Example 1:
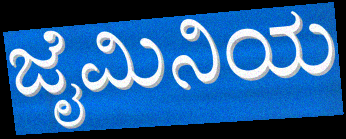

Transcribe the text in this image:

ಜೈಮಿನಿಯ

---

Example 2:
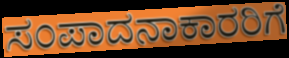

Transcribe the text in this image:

ಸಂಪಾದನಾಕಾರರಿಗೆ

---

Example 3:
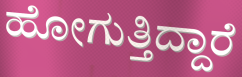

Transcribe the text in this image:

ಹೋಗುತ್ತಿದ್ದಾರೆ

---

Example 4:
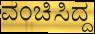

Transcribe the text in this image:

ವಂಚಿಸಿದ್ದ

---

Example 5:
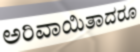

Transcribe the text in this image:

ಅರಿವಾಯಿತಾದರೂ